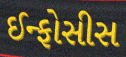
ઈન્ફોસીસ